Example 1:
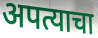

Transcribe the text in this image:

अपत्याचा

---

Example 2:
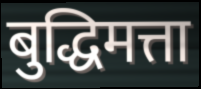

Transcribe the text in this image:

बुद्धिमत्ता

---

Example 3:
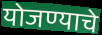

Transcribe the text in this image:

योजण्याचे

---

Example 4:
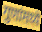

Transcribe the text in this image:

गुणांमध्ये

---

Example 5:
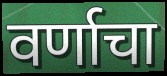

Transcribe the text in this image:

वर्णाचा